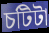
চটিটা